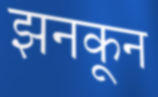
झनकून